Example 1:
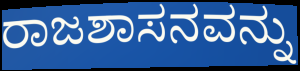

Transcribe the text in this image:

ರಾಜಶಾಸನವನ್ನು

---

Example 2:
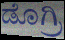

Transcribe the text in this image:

ಡೊಗ್ರಿ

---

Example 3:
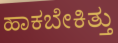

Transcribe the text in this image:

ಹಾಕಬೇಕಿತ್ತು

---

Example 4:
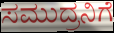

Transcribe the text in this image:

ಸಮುದ್ರನಿಗೆ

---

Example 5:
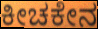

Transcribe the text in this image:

ಕೀಚಕೇನ